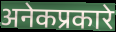
अनेकप्रकारे